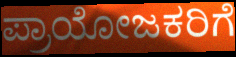
ಪ್ರಾಯೋಜಕರಿಗೆ